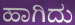
ಹಾಗಿದು